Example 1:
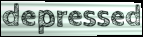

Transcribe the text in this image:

depressed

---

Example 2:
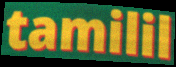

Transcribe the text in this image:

tamilil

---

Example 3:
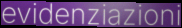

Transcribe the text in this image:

evidenziazioni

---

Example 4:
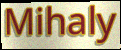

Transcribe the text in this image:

Mihaly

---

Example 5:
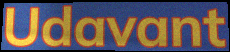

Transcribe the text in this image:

Udavant